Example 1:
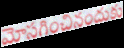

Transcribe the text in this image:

మోసగించినందుకు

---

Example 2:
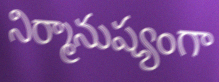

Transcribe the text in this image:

నిర్మానుష్యంగా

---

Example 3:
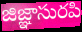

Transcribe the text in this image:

జిజ్ఞాసురపి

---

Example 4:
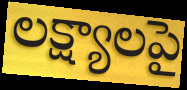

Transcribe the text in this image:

లక్ష్యాలపై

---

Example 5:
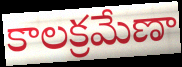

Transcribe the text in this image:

కాలక్రమేణా